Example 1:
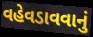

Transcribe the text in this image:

વહેવડાવવાનું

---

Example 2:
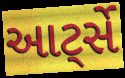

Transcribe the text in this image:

આર્ટ્સે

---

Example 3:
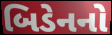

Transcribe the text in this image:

બિડેનનો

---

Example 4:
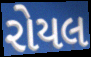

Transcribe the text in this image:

રોયલ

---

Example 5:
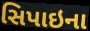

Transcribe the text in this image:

સિપાઇના